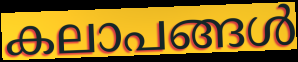
കലാപങ്ങൾ